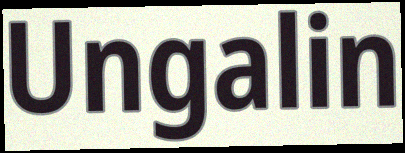
Ungalin